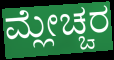
ಮ್ಲೇಚ್ಚರ